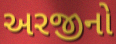
અરજીનો